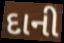
દાની